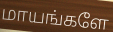
மாயங்களே